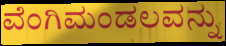
ವೆಂಗಿಮಂಡಲವನ್ನು